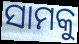
ସାମକୁ